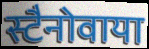
स्टैनोवाया